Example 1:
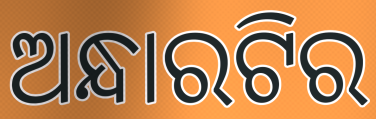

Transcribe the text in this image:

ଅନ୍ଧାରଟିର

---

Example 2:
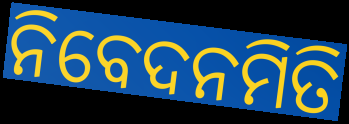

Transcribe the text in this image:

ନିବେଦନମିତି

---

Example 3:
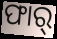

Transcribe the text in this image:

ଫାର୍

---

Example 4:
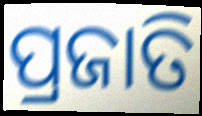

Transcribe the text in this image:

ପ୍ରଜାତି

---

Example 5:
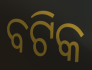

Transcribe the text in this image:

ବଟିକ